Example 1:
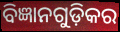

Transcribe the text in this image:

ବିଜ୍ଞାନଗୁଡ଼ିକର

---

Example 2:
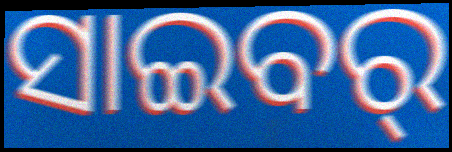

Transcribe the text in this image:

ସାଇବର୍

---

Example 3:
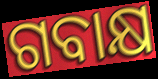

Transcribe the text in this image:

ଗବାକ୍ଷ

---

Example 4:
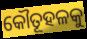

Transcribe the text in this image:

କୌତୂହଳକୁ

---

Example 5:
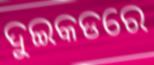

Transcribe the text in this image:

ଦୁଇକଡରେ